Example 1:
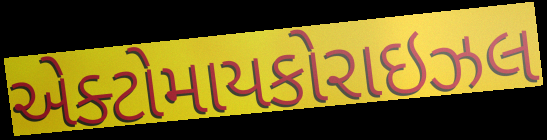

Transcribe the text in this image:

એક્ટોમાયકોરાઇઝલ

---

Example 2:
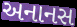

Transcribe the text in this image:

અનાનસ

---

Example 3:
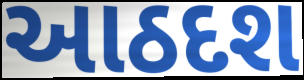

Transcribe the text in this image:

આઠદશ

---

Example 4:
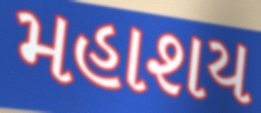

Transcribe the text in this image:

મહાશય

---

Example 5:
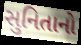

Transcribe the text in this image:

સુનિતાનો